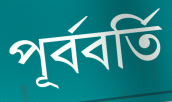
পূর্ববর্তি